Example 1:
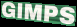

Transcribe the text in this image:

GIMPS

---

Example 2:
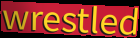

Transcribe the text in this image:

wrestled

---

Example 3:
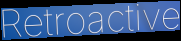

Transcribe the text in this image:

Retroactive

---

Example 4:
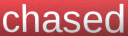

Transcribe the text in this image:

chased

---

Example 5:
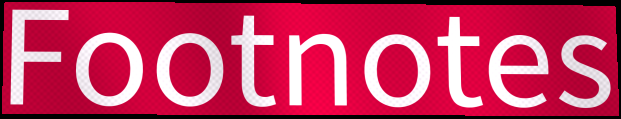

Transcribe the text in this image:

Footnotes